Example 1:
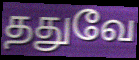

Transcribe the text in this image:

ததுவே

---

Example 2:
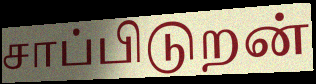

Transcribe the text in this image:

சாப்பிடுறன்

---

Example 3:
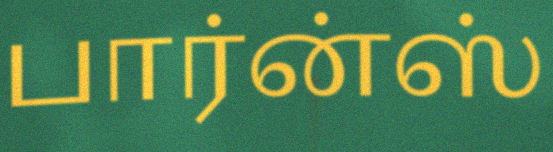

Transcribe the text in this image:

பார்ன்ஸ்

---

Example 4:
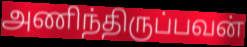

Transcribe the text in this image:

அணிந்திருப்பவன்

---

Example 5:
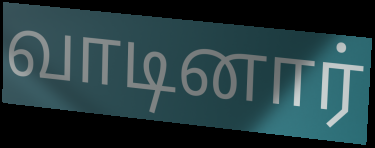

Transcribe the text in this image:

வாடினார்